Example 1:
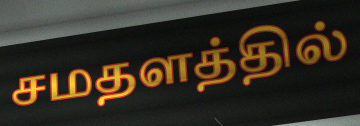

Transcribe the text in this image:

சமதளத்தில்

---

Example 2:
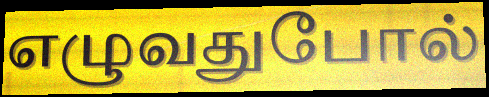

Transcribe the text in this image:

எழுவதுபோல்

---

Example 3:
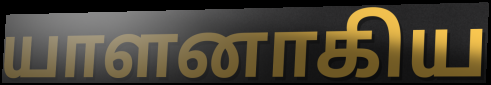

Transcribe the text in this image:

யாளனாகிய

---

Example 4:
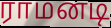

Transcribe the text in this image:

ராமனடி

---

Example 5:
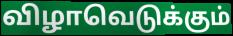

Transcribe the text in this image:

விழாவெடுக்கும்